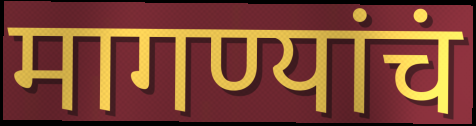
मागण्यांचं